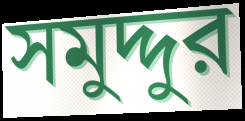
সমুদ্দুর